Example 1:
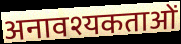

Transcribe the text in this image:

अनावश्यकताओं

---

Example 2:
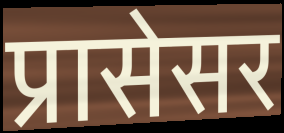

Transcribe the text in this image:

प्रासेसर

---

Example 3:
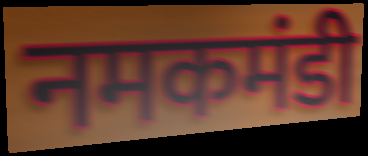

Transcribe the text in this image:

नमकमंडी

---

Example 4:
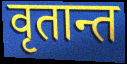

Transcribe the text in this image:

वृतान्त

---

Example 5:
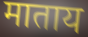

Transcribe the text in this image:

माताय